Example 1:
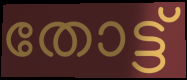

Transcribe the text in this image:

തോട്ട്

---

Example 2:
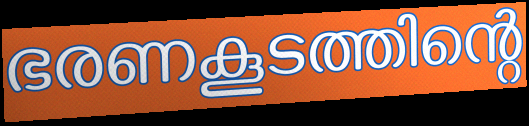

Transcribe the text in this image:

ഭരണകൂടത്തിന്റെ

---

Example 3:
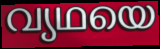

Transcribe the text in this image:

വ്യഥയെ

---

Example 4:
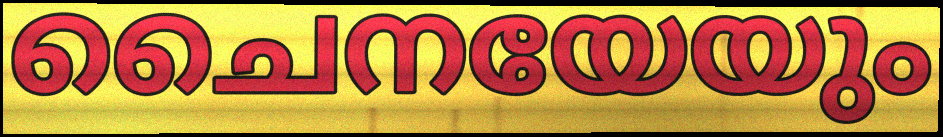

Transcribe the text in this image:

ചൈനയേയും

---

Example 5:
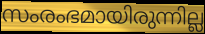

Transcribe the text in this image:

സംരംഭമായിരുന്നില്ല